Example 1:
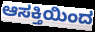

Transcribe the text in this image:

ಆಸಕ್ತಿಯಿಂದ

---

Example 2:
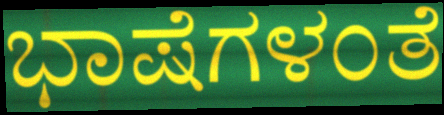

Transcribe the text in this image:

ಭಾಷೆಗಳಂತೆ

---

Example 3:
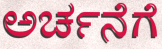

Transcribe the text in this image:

ಅರ್ಚನೆಗೆ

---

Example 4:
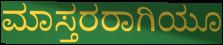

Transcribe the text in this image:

ಮಾಸ್ತರರಾಗಿಯೂ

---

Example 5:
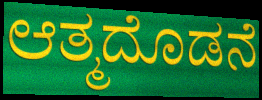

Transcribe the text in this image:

ಆತ್ಮದೊಡನೆ